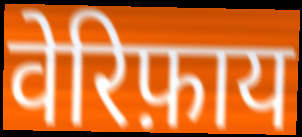
वेरिफ़ाय